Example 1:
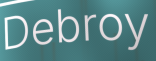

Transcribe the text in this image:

Debroy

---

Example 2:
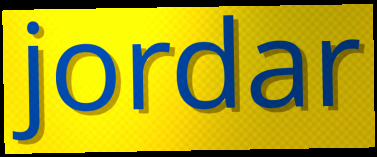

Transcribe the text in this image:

jordar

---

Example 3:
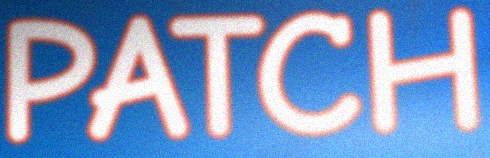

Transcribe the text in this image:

PATCH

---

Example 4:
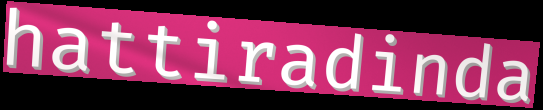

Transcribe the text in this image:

hattiradinda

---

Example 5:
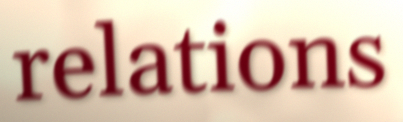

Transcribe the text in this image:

relations